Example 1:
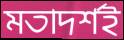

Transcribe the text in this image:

মতাদৰ্শই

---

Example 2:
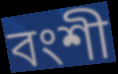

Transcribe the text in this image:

বংশী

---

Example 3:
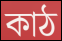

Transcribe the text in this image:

কাঠ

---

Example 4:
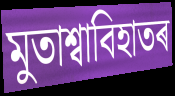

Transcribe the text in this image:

মুতাশ্বাবিহাতৰ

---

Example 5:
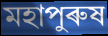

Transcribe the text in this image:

মহাপুৰুষ